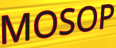
MOSOP